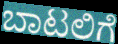
ಬಾಟಲಿಗೆ